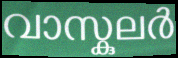
വാസ്കുലർ